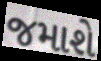
જમાશે